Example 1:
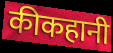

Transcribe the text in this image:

कीकहानी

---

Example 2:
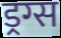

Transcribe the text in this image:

ड्रग्स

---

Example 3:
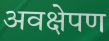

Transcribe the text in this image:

अवक्षेपण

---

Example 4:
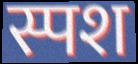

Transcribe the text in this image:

स्पश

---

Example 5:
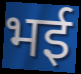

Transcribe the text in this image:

भई